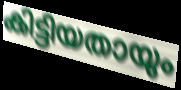
കിട്ടിയതായും